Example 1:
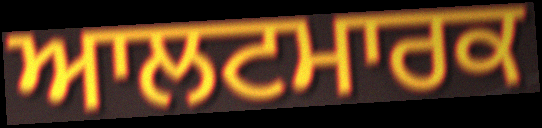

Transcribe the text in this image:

ਆਲਟਮਾਰਕ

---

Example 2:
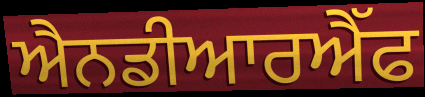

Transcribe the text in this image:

ਐਨਡੀਆਰਐੱਫ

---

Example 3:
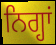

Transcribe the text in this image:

ਨਿਗ੍ਹਾਂ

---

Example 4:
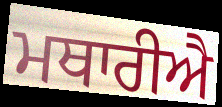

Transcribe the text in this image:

ਮਥਾਰੀਐ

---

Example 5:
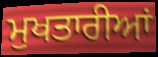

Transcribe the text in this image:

ਮੁਖਤਾਰੀਆਂ